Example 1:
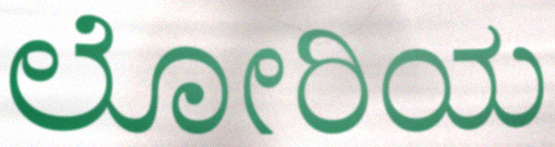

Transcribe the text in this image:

ಲೋರಿಯ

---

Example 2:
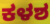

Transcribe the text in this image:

ಕಳಶ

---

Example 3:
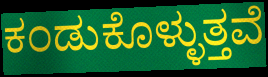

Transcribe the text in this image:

ಕಂಡುಕೊಳ್ಳುತ್ತವೆ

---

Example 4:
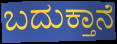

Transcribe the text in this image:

ಬದುಕ್ತಾನೆ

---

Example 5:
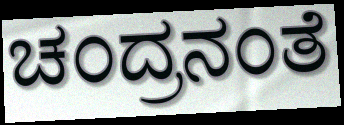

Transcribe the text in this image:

ಚಂದ್ರನಂತೆ